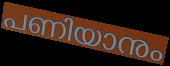
പണിയാനും